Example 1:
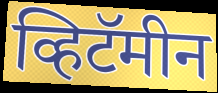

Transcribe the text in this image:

व्हिटॅमीन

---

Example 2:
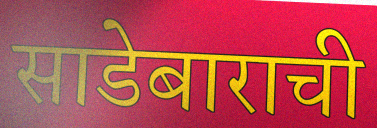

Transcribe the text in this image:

साडेबाराची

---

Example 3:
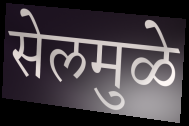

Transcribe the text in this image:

सेलमुळे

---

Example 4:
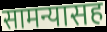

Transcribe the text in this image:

सामन्यासह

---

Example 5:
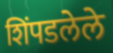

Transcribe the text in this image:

शिंपडलेले